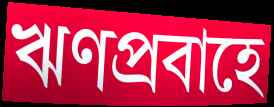
ঋণপ্রবাহে